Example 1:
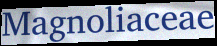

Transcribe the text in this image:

Magnoliaceae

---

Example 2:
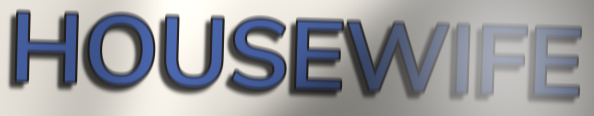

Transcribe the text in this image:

HOUSEWIFE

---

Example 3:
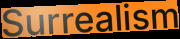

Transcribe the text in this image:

Surrealism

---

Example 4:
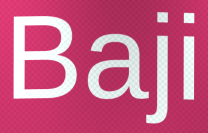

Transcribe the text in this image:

Baji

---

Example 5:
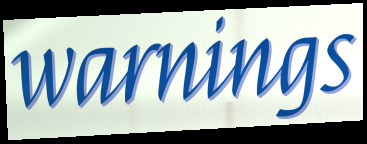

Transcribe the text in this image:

warnings